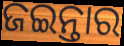
ଜଇନ୍ତାର